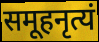
समूहनृत्यं